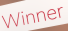
Winner